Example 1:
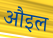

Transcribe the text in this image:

औइल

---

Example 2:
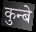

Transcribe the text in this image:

कुन्बे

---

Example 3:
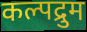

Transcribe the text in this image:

कल्पद्रुम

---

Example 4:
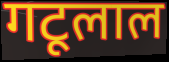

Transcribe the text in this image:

गटूलाल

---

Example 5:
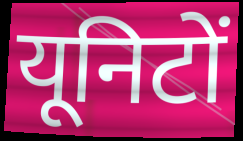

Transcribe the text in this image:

यूनिटों